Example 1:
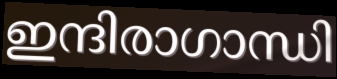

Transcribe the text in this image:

ഇന്ദിരാഗാന്ധി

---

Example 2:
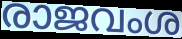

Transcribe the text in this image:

രാജവംശ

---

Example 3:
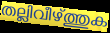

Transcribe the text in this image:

തല്ലിവീഴ്ത്തുക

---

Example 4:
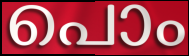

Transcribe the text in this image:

പൊം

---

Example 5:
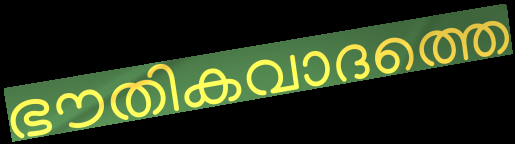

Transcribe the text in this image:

ഭൗതികവാദത്തെ